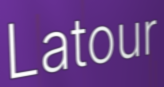
Latour